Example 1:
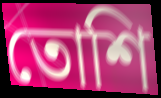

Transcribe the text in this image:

তোশি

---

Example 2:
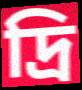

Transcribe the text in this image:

দ্রি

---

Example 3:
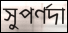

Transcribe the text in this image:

সুপর্ণদা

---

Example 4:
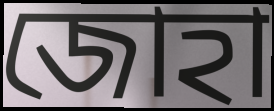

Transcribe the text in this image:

জোহা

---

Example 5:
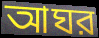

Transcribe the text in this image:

আঘর